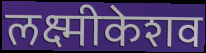
लक्ष्मीकेशव